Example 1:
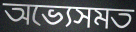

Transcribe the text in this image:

অভ্যেসমত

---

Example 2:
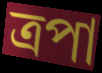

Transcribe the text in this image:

ত্রপা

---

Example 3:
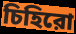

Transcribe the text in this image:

চিহিরো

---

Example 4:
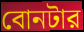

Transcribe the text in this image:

বোনটার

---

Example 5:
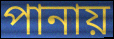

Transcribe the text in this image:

পানায়